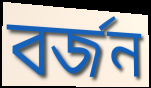
বৰ্জন